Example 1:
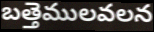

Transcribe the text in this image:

బత్తెములవలన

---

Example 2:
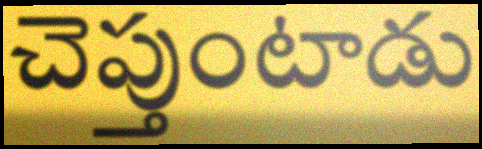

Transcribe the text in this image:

చెప్తుంటాడు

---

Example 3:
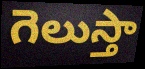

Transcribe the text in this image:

గెలుస్తా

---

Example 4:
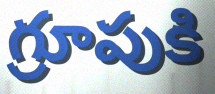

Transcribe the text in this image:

గ్రూపుకి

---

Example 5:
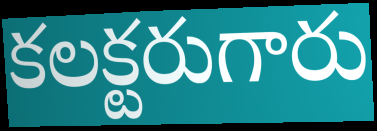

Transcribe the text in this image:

కలక్టరుగారు